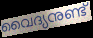
വൈദ്യനുണ്ട്